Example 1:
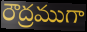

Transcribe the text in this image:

రౌద్రముగా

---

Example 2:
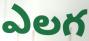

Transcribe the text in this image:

ఎలగ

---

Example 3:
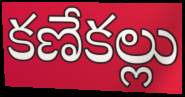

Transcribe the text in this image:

కణేకల్లు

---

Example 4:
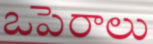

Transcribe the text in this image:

ఒపెరాలు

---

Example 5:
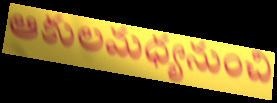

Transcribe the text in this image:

ఆకులమధ్యనుంచి